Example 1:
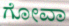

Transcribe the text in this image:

ಗೋವಾ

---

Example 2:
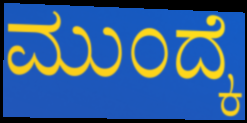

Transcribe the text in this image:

ಮುಂದ್ಕೆ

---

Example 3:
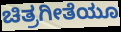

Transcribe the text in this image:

ಚಿತ್ರಗೀತೆಯೂ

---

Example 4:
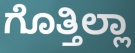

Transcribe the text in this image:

ಗೊತ್ತಿಲ್ಲಾ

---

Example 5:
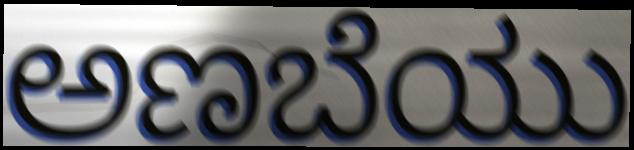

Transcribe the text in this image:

ಅಣಬೆಯು